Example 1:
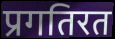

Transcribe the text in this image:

प्रगतिरत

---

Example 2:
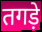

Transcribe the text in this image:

तगड़े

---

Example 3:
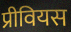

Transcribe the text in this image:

प्रीवियस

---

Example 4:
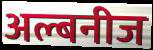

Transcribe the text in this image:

अल्बनीज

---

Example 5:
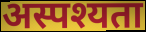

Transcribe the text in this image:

अस्पश्यता